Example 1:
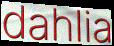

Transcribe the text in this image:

dahlia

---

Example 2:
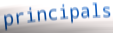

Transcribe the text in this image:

principals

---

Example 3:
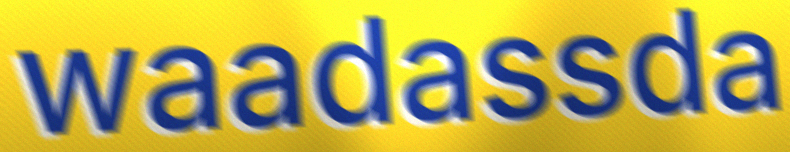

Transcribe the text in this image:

waadassda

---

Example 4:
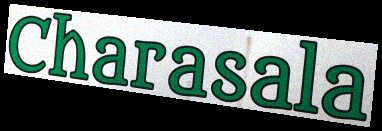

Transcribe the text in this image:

Charasala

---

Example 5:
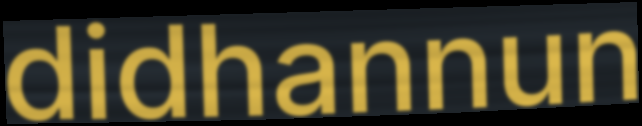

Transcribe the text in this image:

didhannun